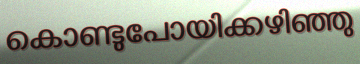
കൊണ്ടുപോയിക്കഴിഞ്ഞു